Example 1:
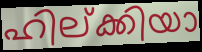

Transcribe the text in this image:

ഹില്ക്കിയാ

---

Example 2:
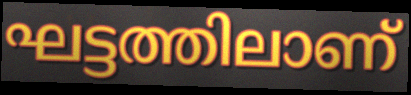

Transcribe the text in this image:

ഘട്ടത്തിലാണ്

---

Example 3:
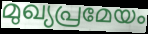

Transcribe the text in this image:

മുഖ്യപ്രമേയം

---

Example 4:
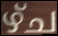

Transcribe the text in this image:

ഴ്ച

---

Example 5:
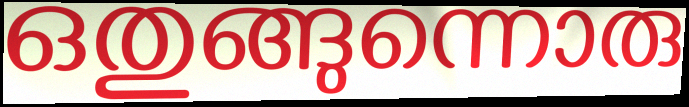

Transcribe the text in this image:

ഒതുങ്ങുന്നൊരു